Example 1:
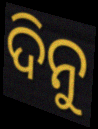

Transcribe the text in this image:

ଦିନୁ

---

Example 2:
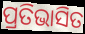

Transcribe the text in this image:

ପ୍ରତିଭାସିତ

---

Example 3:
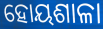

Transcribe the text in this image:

ହୋୟଶାଳା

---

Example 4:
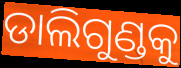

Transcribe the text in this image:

ଡାଲିଗୁଣ୍ଡକୁ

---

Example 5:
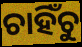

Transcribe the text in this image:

ଚାହିଁଚୁ